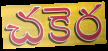
చకెర